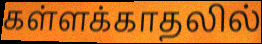
கள்ளக்காதலில்